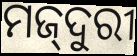
ମଜ୍‌ଦୁରୀ